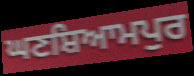
ਘਣਸ਼ਿਆਮਪੁਰ